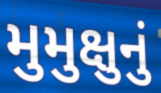
મુમુક્ષુનું